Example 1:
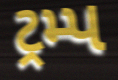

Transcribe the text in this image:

ટ્રમ્પ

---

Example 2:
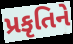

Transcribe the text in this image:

પ્રકૃતિને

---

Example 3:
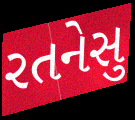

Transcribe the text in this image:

રતનેસુ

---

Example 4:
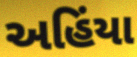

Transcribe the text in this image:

અહિંયા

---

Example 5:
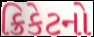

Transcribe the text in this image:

ક્રિકેટનો